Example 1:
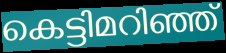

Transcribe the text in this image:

കെട്ടിമറിഞ്ഞ്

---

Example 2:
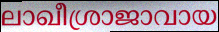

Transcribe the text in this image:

ലാഖീശ്രാജാവായ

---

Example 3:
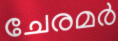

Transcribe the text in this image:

ചേരമർ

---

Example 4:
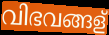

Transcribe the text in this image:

വിഭവങ്ങള്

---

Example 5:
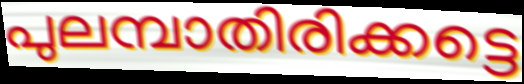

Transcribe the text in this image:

പുലമ്പാതിരിക്കട്ടെ